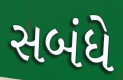
સબંધે